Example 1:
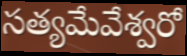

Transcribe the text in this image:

సత్యమేవేశ్వరో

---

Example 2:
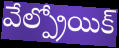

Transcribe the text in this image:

వేల్ప్రోయిక్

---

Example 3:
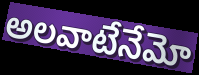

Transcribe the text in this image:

అలవాటేనేమో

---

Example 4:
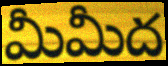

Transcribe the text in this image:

మీమీద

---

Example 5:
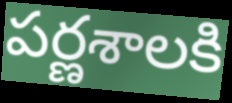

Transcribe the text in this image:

పర్ణశాలకి